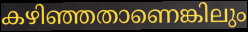
കഴിഞ്ഞതാണെങ്കിലും